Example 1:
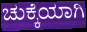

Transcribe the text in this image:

ಚುಕ್ಕೆಯಾಗಿ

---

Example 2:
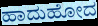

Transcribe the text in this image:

ಹಾದುಹೋದ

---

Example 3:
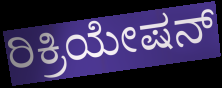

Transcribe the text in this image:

ರಿಕ್ರಿಯೇಷನ್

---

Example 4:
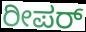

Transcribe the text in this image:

ರೀಪರ್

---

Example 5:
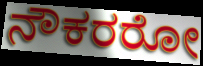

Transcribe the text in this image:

ನೌಕರರೋ